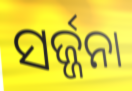
ସର୍ଜ୍ଜନା